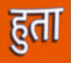
हुता